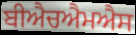
ਬੀਐਚਐਮਐਸ